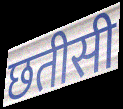
छतीसी